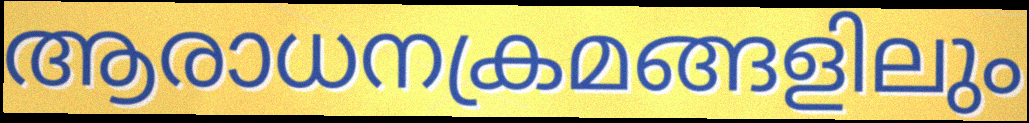
ആരാധനക്രമങ്ങളിലും